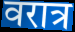
वरात्र